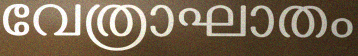
വേത്രാഘാതം